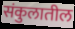
संकुलातील